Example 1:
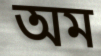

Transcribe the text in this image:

অম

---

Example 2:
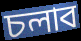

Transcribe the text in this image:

চলাব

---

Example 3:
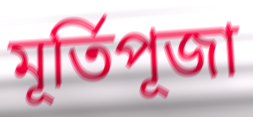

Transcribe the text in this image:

মূৰ্তিপূজা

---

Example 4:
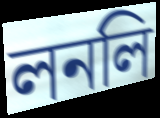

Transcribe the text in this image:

লনলি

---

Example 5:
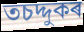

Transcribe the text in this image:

তচদ্দুকৰ